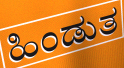
ಹಿಂಡುತ